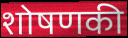
शोषणकी